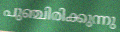
പുഞ്ചിരിക്കുന്നു